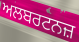
ਅਲਬਰਟਨਜ਼